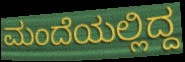
ಮಂದೆಯಲ್ಲಿದ್ದ